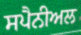
ਸਪੈਨੀਅਲ